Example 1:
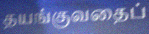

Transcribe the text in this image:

தயங்குவதைப்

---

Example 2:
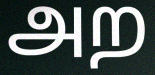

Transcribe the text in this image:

அற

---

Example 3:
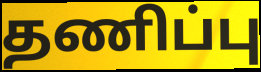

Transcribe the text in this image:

தணிப்பு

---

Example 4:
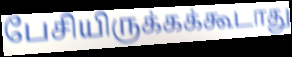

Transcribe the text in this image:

பேசியிருக்கக்கூடாது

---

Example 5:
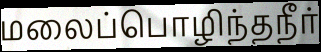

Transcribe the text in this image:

மலைப்பொழிந்தநீர்